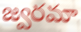
జ్వరమా